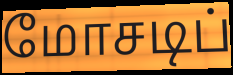
மோசடிப்